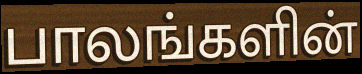
பாலங்களின்